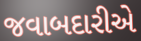
જવાબદારીએ